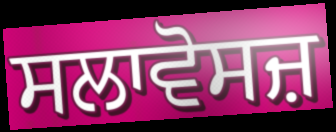
ਸਲਾਵੋਸਜ਼